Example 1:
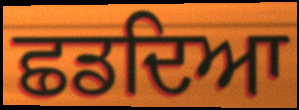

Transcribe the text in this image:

ਛਡਦਿਆ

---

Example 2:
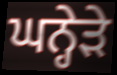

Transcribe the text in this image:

ਘਨ੍ਹੇੜੇ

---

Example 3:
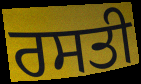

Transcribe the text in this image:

ਰਸਤੀ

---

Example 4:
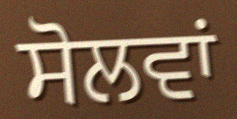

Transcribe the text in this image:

ਸੋਲਵਾਂ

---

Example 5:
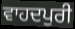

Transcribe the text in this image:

ਵਾਹਦਪੁਰੀ